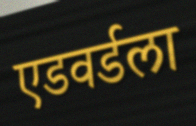
एडवर्डला